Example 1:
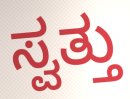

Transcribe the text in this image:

ಸ್ವತ್ತು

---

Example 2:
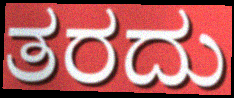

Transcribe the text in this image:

ತರದು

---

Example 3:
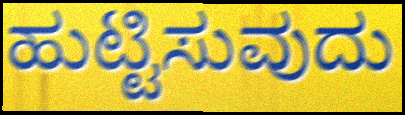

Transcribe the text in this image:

ಹುಟ್ಟಿಸುವುದು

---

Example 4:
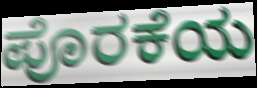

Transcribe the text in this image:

ಪೊರಕೆಯ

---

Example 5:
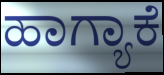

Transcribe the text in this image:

ಹಾಗ್ಯಾಕೆ